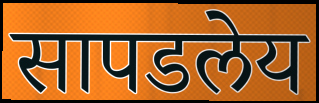
सापडलेय